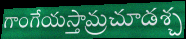
గాంగేయస్తామ్రచూడశ్చ